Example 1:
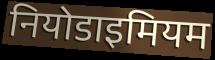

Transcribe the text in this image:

नियोडाइमियम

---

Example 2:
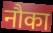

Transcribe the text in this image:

नौका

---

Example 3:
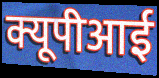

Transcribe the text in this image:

क्यूपीआई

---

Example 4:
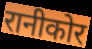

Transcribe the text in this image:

रानीकोर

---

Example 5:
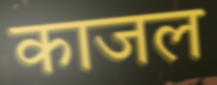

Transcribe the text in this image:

काजल